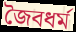
জৈবধর্ম